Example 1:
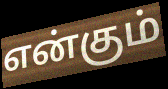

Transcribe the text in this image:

என்கும்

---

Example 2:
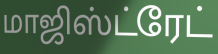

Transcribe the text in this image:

மாஜிஸ்ட்ரேட்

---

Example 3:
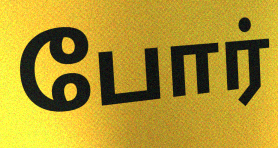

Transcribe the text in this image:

போர்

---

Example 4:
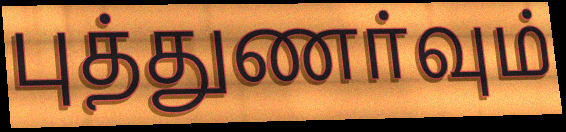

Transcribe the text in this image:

புத்துணர்வும்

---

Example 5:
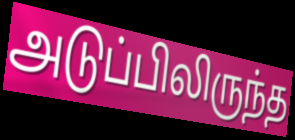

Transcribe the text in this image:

அடுப்பிலிருந்த